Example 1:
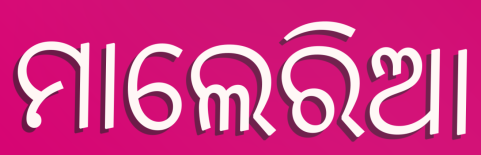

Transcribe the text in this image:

ମାଲେରିଆ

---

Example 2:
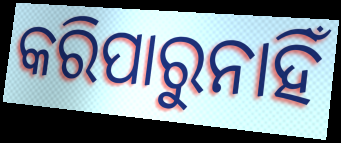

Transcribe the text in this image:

କରିପାରୁନାହିଁ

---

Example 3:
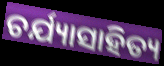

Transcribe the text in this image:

ଚର୍ଯ୍ୟାସାହିତ୍ୟ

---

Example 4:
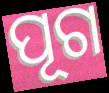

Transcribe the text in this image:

ପୂଗ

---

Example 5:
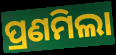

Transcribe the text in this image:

ପ୍ରଣମିଲା